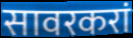
सावरकरां